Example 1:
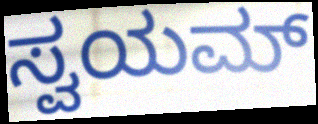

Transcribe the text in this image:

ಸ್ವಯಮ್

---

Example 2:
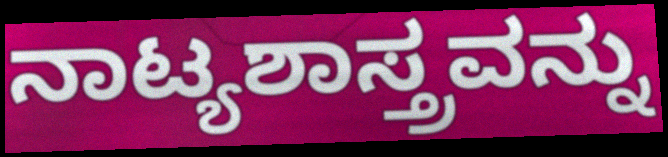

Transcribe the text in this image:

ನಾಟ್ಯಶಾಸ್ತ್ರವನ್ನು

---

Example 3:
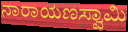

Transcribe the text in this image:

ನಾರಾಯಣಸ್ವಾಮಿ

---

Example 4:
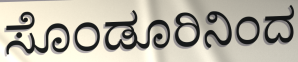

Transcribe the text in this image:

ಸೊಂಡೂರಿನಿಂದ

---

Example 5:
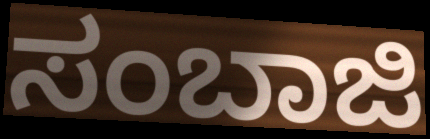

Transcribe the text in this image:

ಸಂಬಾಜಿ